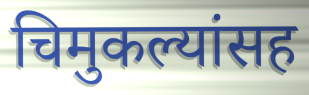
चिमुकल्यांसह